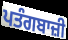
ਪਤੰਗਬਾਜ਼ੀ